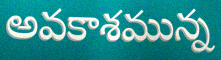
అవకాశమున్న